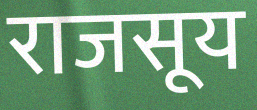
राजसूय